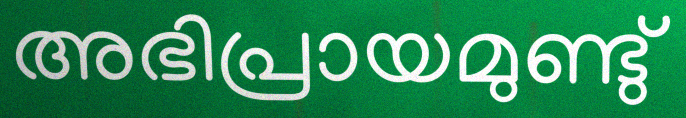
അഭിപ്രായമുണ്ടു്